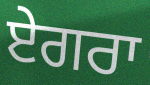
ਏਗਰਾ